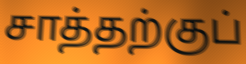
சாத்தற்குப்